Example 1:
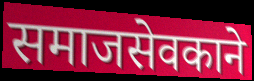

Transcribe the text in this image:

समाजसेवकाने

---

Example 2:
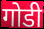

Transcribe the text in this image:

गोडी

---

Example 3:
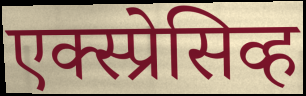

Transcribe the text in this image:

एक्स्प्रेसिव्ह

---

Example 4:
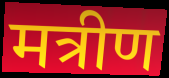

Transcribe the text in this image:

मत्रीण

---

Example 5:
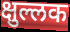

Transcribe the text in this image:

क्षुल्लक